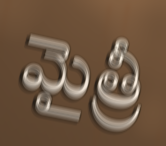
మైత్రీ